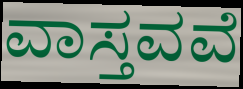
ವಾಸ್ತವವೆ